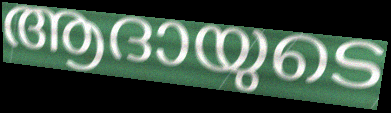
ആദായുടെ